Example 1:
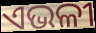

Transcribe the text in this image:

ଏଭଳୀ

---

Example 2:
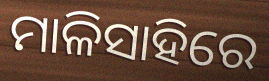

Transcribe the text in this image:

ମାଳିସାହିରେ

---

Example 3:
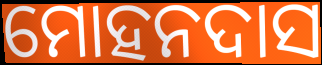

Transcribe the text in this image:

ମୋହନଦାସ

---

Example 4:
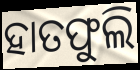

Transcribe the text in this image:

ହାତଫୁଲି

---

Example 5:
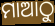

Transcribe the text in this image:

ମାଆଠୁ